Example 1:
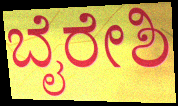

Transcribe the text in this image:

ಬೈರೇಶಿ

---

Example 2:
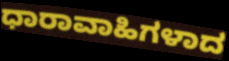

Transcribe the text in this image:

ಧಾರಾವಾಹಿಗಳಾದ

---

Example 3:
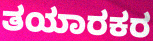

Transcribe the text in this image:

ತಯಾರಕರ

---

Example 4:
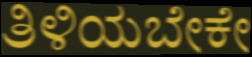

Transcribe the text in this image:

ತಿಳಿಯಬೇಕೇ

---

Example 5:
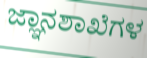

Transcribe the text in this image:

ಜ್ಞಾನಶಾಖೆಗಳ